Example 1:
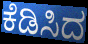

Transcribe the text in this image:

ಕೆಡಿಸಿದ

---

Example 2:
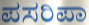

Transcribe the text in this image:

ಪಸರಿಪಾ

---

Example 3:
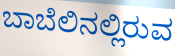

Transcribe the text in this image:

ಬಾಬೆಲಿನಲ್ಲಿರುವ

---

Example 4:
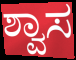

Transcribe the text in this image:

ಶ್ವಾಸ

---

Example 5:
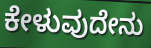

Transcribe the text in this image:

ಕೇಳುವುದೇನು